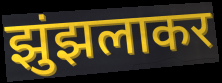
झुंझलाकर